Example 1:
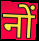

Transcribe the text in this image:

नों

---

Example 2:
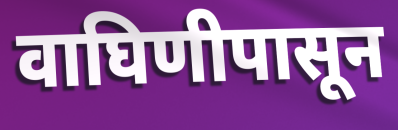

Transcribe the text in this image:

वाघिणीपासून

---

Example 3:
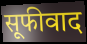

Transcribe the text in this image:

सूफीवाद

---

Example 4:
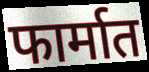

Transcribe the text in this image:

फार्मात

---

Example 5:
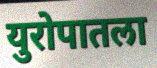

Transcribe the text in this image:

युरोपातला